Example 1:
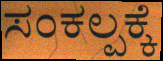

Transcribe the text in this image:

ಸಂಕಲ್ಪಕ್ಕೆ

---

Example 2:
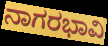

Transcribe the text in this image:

ನಾಗರಭಾವಿ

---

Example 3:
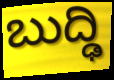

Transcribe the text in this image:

ಬುದ್ಢಿ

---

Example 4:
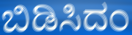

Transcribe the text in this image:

ಬಿಡಿಸಿದಂ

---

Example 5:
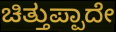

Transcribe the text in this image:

ಚಿತ್ತುಪ್ಪಾದೇ